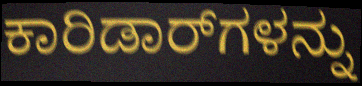
ಕಾರಿಡಾರ್‌ಗಳನ್ನು